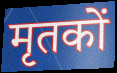
मृतकों